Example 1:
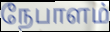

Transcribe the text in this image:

நேபாளம்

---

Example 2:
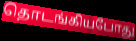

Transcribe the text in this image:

தொடங்கியபோது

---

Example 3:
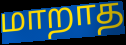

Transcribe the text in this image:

மாறாத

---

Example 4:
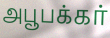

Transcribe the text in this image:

அபூபக்கர்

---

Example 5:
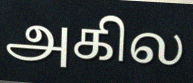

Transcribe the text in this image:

அகில